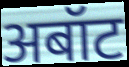
अबॉट